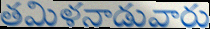
తమిళనాడువారు